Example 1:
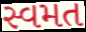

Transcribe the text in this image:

સ્વમત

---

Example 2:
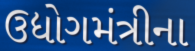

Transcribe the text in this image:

ઉદ્યોગમંત્રીના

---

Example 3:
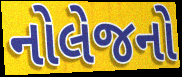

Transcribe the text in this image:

નોલેજનો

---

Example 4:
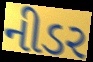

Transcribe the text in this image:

નીડર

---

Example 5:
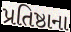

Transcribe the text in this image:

પ્રતિષ્ઠાના